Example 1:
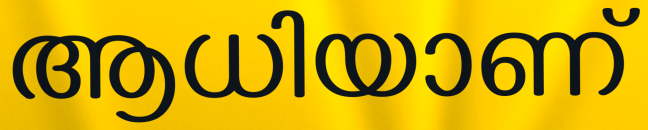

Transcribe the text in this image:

ആധിയാണ്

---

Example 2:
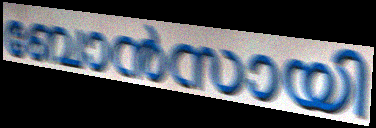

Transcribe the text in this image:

ബോൻസായി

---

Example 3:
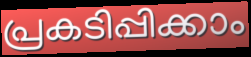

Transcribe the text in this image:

പ്രകടിപ്പിക്കാം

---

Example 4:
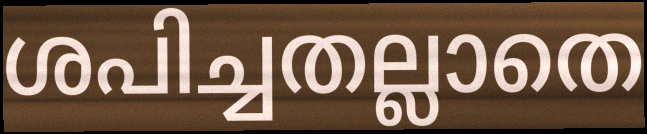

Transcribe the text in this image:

ശപിച്ചതല്ലാതെ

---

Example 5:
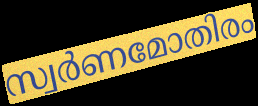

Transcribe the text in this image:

സ്വർണമോതിരം